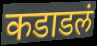
कडाडलं